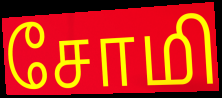
சோமி